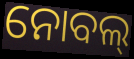
ନୋବଲ୍